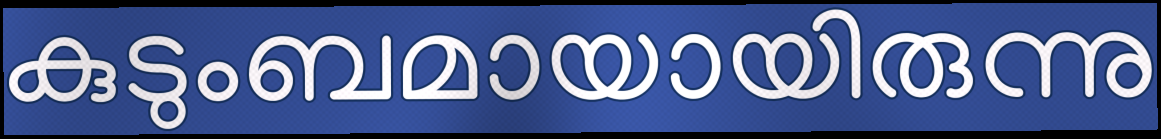
കുടുംബമായായിരുന്നു